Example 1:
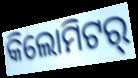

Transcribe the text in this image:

କିଲୋମିଟର୍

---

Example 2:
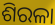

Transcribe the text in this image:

ଶିରଳା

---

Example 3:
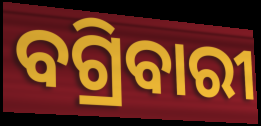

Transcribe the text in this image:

ବଗ୍ରିବାରୀ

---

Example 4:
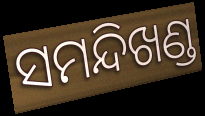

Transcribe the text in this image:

ସମନ୍ଦିଖଣ୍ଡ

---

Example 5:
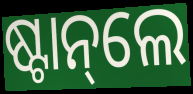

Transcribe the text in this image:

ଷ୍ଟାନ୍‌ଲେ